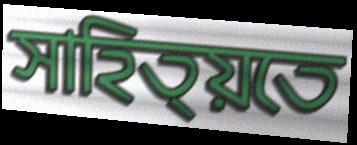
সাহিত্য়তে